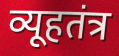
व्यूहतंत्र